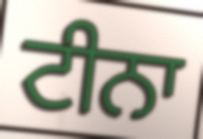
ਟੀਨਾ